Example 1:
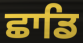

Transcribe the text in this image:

ਛਾਡਿ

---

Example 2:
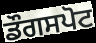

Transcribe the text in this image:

ਡੌਗਸਪੋਟ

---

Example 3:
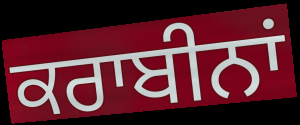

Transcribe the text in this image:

ਕਰਾਬੀਨਾਂ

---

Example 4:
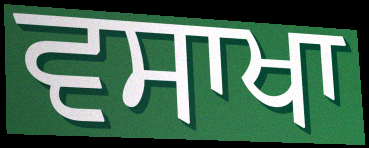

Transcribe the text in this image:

ਵਸਾਖਾ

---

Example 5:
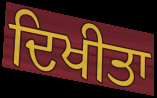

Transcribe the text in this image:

ਦਿਖੀਤਾ